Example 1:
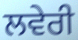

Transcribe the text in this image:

ਲਵੇਰੀ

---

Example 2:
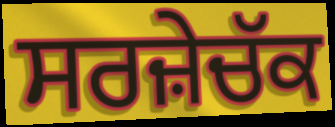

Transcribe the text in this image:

ਸਰਜ਼ੇਚੱਕ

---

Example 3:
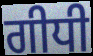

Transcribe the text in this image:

ਗੀਧੀ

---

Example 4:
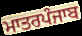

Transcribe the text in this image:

ਮਾਤਰਪੰਜਾਬ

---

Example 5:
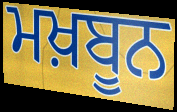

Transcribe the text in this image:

ਮਖ਼ਬੂਨ